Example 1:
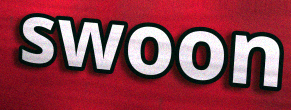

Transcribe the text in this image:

swoon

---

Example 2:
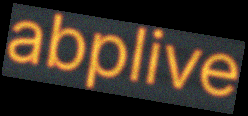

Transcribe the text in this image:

abplive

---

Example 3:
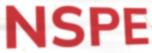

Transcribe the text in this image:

NSPE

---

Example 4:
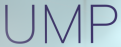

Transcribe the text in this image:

UMP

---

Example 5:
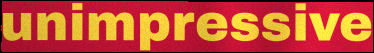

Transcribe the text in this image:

unimpressive